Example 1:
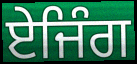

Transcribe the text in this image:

ਏਜਿੰਗ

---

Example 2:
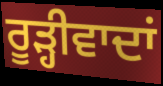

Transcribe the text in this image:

ਰੂੜ੍ਹੀਵਾਦਾਂ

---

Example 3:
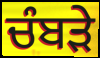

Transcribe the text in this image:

ਚੰਬੜੇ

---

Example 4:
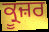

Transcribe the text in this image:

ਕ੍ਰੂਜ਼ਰ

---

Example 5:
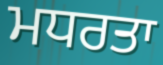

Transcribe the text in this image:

ਮਧਰਤਾ